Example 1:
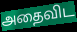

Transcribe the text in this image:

அதைவிட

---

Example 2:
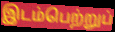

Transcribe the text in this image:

இடம்பெற்றுப்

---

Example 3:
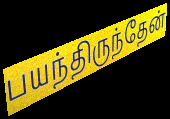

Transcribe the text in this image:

பயந்திருந்தேன்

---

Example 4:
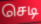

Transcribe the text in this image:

செடி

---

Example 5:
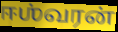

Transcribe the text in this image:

ஈஶ்வரன்